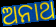
ଅନାଥ